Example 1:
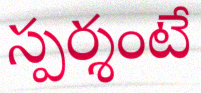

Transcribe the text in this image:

స్పర్శంటే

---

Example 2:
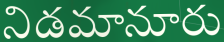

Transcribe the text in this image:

నిడమానూరు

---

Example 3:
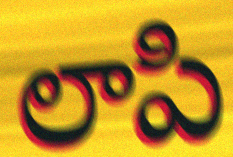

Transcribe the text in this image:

లాపి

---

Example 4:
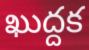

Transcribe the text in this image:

ఖుద్దక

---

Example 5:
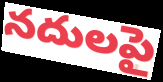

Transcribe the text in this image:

నదులపై